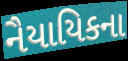
નૈયાયિકના